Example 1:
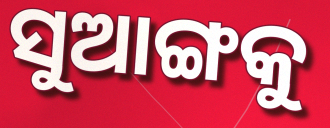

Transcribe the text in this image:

ସୁଆଙ୍ଗକୁ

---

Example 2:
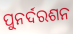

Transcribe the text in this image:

ପୁନର୍ଦରଶନ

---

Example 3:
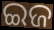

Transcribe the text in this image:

ଇଜ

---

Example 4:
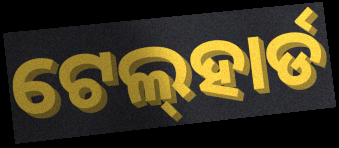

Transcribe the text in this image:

ଟେଲ୍‍ହାର୍ଡ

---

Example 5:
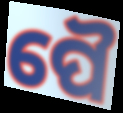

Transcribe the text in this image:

ପୈ